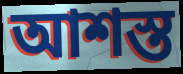
আশস্ত